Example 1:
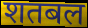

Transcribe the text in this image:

शतबल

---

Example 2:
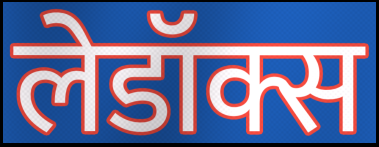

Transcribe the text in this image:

लेडॉक्स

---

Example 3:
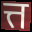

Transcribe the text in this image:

त्त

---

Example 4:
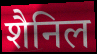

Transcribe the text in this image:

शैनिल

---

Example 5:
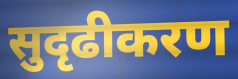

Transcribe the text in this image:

सुदृढीकरण